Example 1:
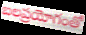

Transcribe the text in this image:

బలప్రయోగంతో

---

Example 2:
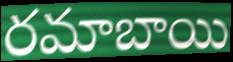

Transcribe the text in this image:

రమాబాయి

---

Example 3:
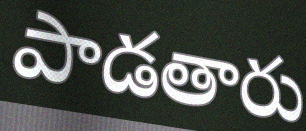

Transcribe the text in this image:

పాడతారు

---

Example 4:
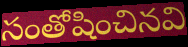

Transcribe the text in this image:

సంతోషించినవి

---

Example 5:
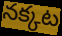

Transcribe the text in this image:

నక్కట